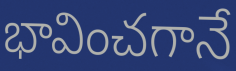
భావించగానే